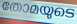
തോമയുടെ